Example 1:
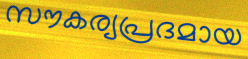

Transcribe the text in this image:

സൗകര്യപ്രദമായ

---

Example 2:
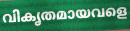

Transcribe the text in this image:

വികൃതമായവളെ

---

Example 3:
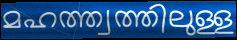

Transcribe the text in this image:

മഹത്ത്വത്തിലുള്ള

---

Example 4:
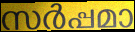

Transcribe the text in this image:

സർപ്പമാ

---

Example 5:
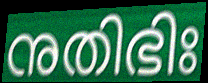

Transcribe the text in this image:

നുതിഭിഃ